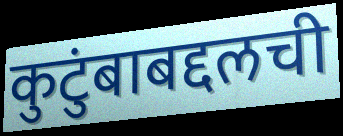
कुटुंबाबद्दलची